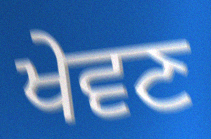
ਖੇਵਣ